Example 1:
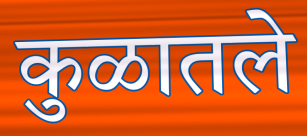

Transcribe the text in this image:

कुळातले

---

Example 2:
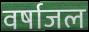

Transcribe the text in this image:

वर्षाजल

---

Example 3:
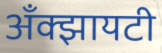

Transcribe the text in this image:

अँक्झायटी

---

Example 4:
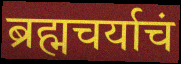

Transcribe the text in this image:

ब्रह्मचर्याचं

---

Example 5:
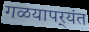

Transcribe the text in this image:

गळयापर्यंत